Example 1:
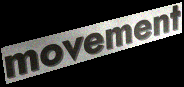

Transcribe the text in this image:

movement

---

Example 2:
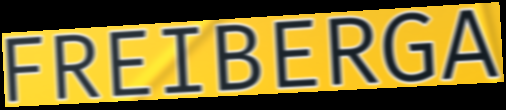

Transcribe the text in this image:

FREIBERGA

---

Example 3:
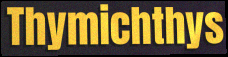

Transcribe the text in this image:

Thymichthys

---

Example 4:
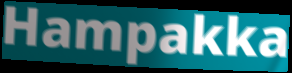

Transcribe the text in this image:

Hampakka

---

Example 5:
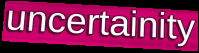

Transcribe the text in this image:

uncertainity